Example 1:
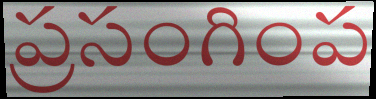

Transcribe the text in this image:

ప్రసంగింప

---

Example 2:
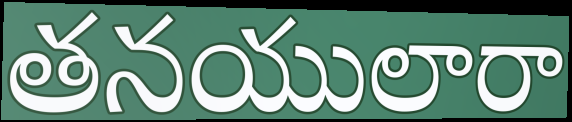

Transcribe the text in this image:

తనయులారా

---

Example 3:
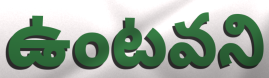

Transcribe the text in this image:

ఉంటవని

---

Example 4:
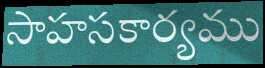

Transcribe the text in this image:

సాహసకార్యము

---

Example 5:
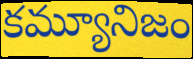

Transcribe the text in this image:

కమ్యూనిజం